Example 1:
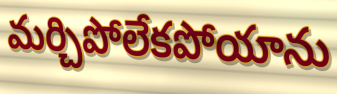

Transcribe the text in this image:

మర్చిపోలేకపోయాను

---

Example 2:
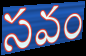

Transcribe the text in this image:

సవం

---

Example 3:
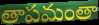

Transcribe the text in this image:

తాపమంతా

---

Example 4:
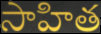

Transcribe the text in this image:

సాహిత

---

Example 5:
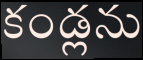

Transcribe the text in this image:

కండ్లను